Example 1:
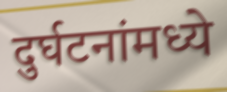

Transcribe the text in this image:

दुर्घटनांमध्ये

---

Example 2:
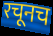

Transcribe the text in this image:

रचूनच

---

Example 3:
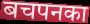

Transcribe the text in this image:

बचपनका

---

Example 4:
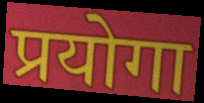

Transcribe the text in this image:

प्रयोगा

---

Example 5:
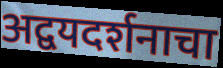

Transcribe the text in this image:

अद्वयदर्शनाचा